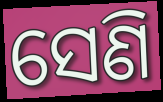
ସେଣି